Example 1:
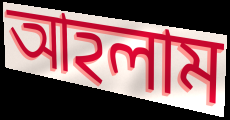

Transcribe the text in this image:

আহলাম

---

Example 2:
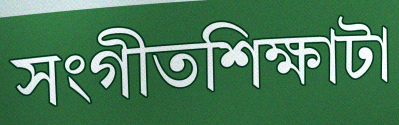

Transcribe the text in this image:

সংগীতশিক্ষাটা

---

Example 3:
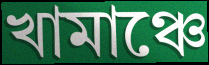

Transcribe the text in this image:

খামাঞ্চে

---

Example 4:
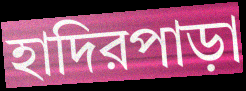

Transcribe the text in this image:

হাদিরপাড়া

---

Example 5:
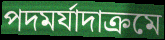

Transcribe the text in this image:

পদমর্যাদাক্রমে